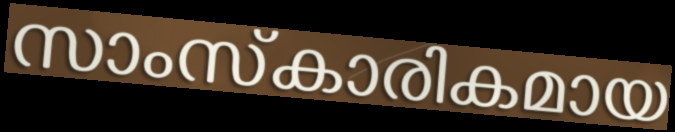
സാംസ്‌കാരികമായ